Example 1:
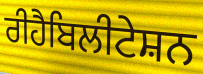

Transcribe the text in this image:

ਰੀਹੈਬਿਲੀਟੇਸ਼ਨ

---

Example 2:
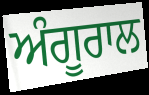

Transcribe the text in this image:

ਅੰਗੂਰਾਲ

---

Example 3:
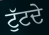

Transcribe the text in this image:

ਟੁੱਟਦੇ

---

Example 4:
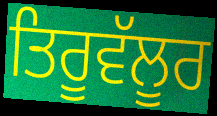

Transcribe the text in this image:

ਤਿਰੂਵੱਲੂਰ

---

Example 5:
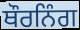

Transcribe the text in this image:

ਥੌਰਨਿੰਗ